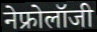
नेफ्रोलॉजी